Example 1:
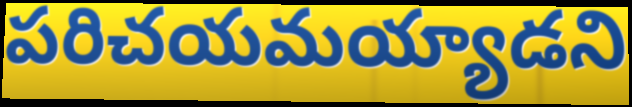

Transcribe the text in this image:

పరిచయమయ్యాడని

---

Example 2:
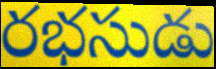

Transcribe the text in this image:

రభసుడు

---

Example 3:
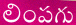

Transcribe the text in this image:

లింపగు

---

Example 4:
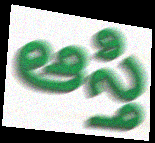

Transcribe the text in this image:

ఆస్తి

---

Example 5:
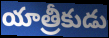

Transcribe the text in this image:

యాత్రీకుడు